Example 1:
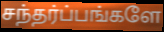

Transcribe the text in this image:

சந்தர்ப்பங்களே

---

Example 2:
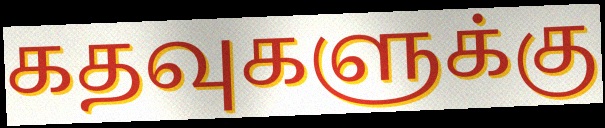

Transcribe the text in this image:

கதவுகளுக்கு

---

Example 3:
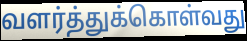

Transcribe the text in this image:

வளர்த்துக்கொள்வது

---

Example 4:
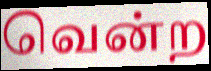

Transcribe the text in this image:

வென்ற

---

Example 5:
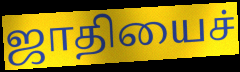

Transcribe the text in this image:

ஜாதியைச்